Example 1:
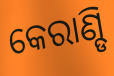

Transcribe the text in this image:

କେରାଣ୍ଡି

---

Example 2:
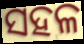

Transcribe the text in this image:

ସହଳ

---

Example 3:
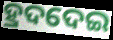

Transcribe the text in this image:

ହ୍ରଦଦେଇ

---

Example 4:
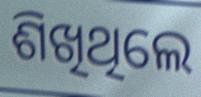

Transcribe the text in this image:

ଶିଖିଥିଲେ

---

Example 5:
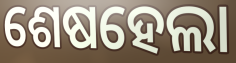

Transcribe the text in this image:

ଶେଷହେଲା